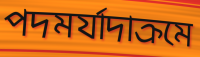
পদমর্যাদাক্রমে